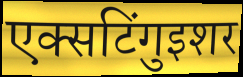
एक्सटिंगुइशर